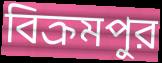
বিক্রমপুর